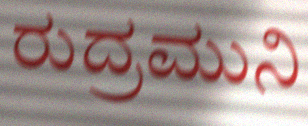
ರುದ್ರಮುನಿ